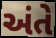
અંતે